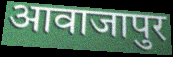
आवाजापुर